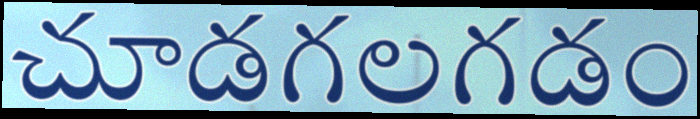
చూడగలగడం